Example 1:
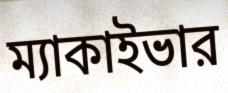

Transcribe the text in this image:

ম্যাকাইভার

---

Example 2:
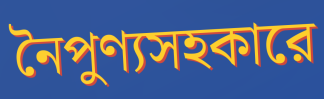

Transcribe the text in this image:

নৈপুণ্যসহকারে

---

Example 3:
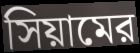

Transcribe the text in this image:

সিয়ামের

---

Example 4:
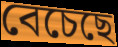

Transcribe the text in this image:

বেচেছে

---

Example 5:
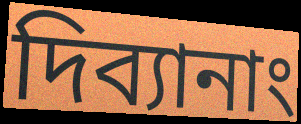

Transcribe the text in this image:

দিব্যানাং